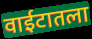
वाईटातला